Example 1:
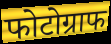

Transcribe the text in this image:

फोटोग्राफ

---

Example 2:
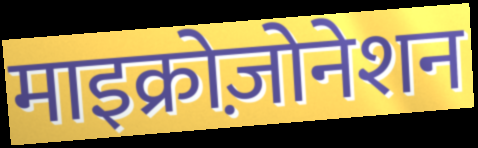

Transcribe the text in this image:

माइक्रोज़ोनेशन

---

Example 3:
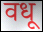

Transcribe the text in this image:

वधू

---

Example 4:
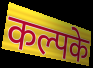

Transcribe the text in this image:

कल्पके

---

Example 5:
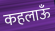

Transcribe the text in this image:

कहलाऊँ